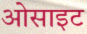
ओसाइट